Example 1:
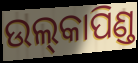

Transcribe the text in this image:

ଉଲ୍‌କାପିଣ୍ଡ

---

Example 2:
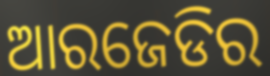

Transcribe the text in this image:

ଆରଜେଡିର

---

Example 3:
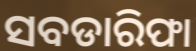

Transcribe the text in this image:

ସବଡାରିଫା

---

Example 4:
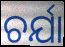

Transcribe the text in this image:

ଚର୍ଯା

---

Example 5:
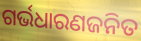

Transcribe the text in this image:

ଗର୍ଭଧାରଣଜନିତ